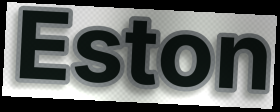
Eston